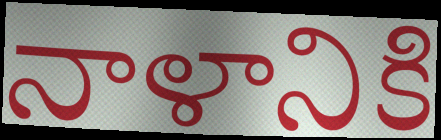
నాళానికి